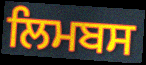
ਲਿਮਬਸ